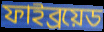
ফাইব্রয়েড